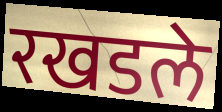
रखडले